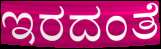
ಇರದಂತೆ